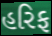
હરિફ